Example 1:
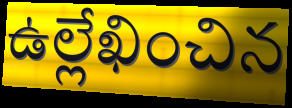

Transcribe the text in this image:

ఉల్లేఖించిన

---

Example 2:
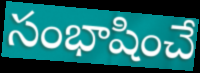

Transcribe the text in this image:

సంభాషించే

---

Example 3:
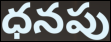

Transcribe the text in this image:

ధనపు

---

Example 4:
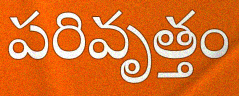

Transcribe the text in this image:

పరివృత్తం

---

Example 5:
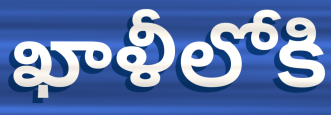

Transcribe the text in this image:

ఖాళీలోకి